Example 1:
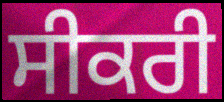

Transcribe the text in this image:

ਸੀਕਰੀ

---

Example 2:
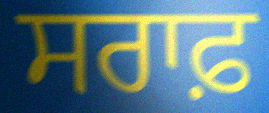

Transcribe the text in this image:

ਸਰਾਫ਼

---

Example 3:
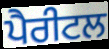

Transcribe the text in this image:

ਪੈਰੀਟਲ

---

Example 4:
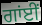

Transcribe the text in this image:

ਗਾਂਈਂ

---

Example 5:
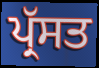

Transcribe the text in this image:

ਪ੍ਰੱਸਤ